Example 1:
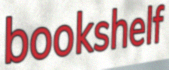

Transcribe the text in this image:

bookshelf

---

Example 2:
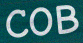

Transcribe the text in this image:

COB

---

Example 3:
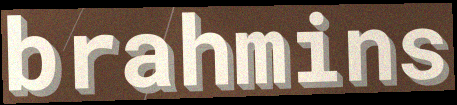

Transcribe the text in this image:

brahmins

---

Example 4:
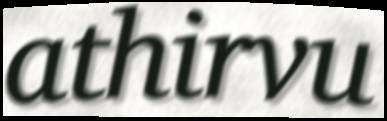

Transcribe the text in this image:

athirvu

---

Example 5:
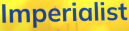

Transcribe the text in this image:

Imperialist